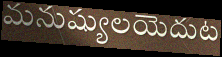
మనుష్యులయెదుట